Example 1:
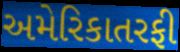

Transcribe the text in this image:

અમેરિકાતરફી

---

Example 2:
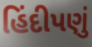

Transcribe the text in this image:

હિંદીપણું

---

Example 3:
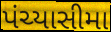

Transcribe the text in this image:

પંચ્યાસીમા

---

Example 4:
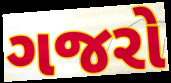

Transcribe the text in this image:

ગજરો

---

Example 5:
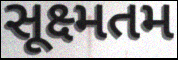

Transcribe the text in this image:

સૂક્ષ્મતમ